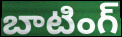
బాటింగ్